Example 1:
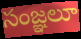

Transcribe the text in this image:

సంజ్ఞలూ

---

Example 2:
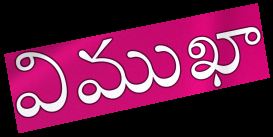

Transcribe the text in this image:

విముఖా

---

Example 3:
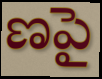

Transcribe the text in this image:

ణపై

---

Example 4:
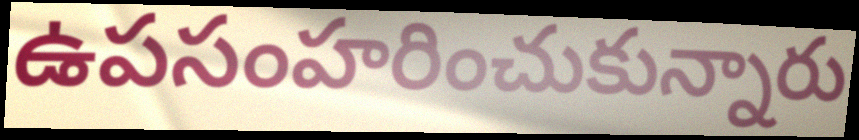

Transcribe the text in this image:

ఉపసంహరించుకున్నారు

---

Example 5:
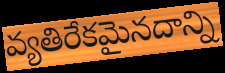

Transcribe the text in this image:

వ్యతిరేకమైనదాన్ని